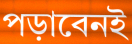
পড়াবেনই